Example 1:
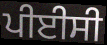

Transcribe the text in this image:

ਪੀਈਸੀ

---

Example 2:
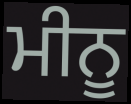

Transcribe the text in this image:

ਮੀਨੂ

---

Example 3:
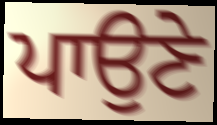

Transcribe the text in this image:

ਪਾਉਣੇ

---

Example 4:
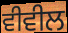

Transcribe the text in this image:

ਵੀਵੀਲ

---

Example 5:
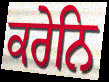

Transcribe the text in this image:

ਕਰੇਨਿ